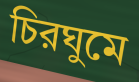
চিরঘুমে